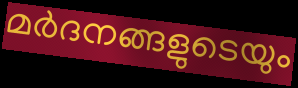
മർദനങ്ങളുടെയും